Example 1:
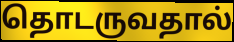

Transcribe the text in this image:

தொடருவதால்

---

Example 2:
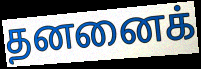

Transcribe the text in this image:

தனனைக்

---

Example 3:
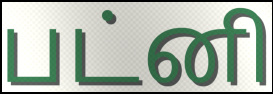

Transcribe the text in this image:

பட்னி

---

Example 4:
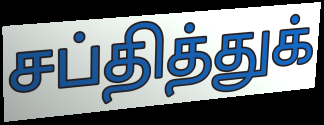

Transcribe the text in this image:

சப்தித்துக்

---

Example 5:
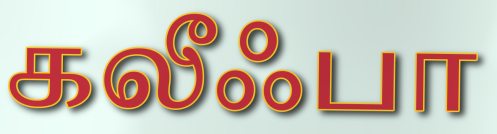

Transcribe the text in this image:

கலீஃபா